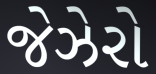
જેઝેરો